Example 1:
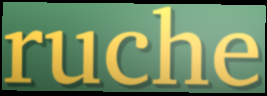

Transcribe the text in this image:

ruche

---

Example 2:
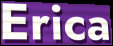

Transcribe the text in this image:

Erica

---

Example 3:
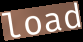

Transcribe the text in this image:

load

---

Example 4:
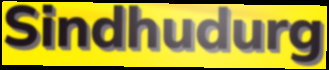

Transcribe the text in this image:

Sindhudurg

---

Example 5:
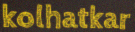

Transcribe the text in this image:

kolhatkar